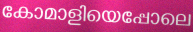
കോമാളിയെപ്പോലെ